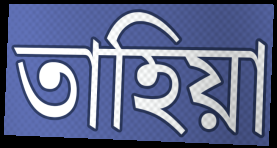
তাহিয়া